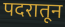
पदरातून